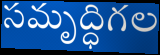
సమృద్ధిగల